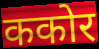
ककोर